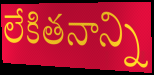
లేకితనాన్ని